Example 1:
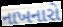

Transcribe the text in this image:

નાખનારો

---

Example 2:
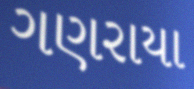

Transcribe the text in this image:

ગણરાયા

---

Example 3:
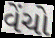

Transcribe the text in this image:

વેંચો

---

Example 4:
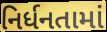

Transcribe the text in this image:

નિર્ધનતામાં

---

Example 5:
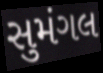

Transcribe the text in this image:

સુમંગલ